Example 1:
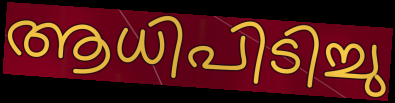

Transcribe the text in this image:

ആധിപിടിച്ചു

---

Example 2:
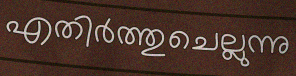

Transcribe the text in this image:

എതിർത്തുചെല്ലുന്നു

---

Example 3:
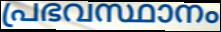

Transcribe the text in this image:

പ്രഭവസ്ഥാനം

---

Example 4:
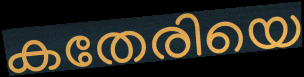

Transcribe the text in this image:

കതേരിയെ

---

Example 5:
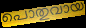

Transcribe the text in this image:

പൊതുവായ